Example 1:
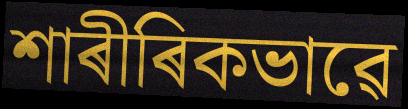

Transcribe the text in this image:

শাৰীৰিকভাৱে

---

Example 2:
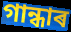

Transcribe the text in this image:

গান্ধাৰ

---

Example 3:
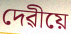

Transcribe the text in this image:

দেৱীয়ে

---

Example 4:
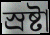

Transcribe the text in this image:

স্ৰষ্টা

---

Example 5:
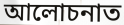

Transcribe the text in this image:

আলোচনাত